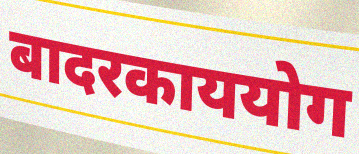
बादरकाययोग